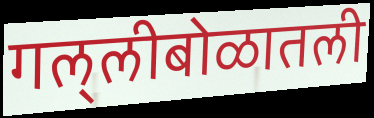
गल्लीबोळातली